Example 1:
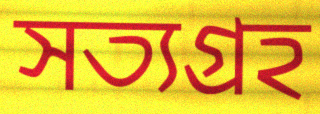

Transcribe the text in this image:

সত্যগ্ৰহ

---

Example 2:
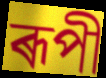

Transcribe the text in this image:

ৰূপী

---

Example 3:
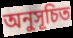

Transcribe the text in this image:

অনুসূচিত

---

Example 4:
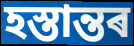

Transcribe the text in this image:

হস্তান্তৰ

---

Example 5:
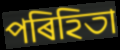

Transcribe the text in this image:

পৰিহিতা